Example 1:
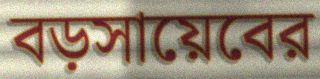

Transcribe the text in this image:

বড়সায়েবের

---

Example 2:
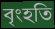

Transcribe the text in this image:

বৃংহতি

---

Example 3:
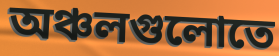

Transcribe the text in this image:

অঞ্চলগুলোতে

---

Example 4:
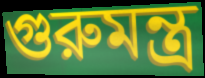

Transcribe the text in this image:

গুরুমন্ত্র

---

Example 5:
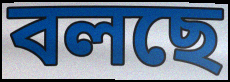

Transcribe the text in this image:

বলছে